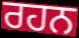
ਰਹਨ